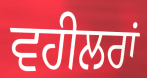
ਵਹੀਲਰਾਂ